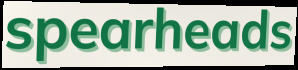
spearheads